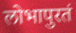
लोभापुरतं